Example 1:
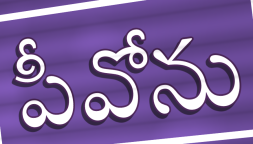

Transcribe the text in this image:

పీవోను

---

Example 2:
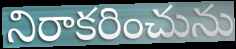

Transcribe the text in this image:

నిరాకరించును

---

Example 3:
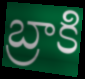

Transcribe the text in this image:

బ్రాకి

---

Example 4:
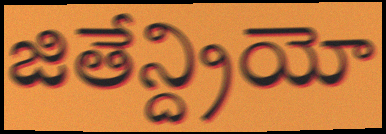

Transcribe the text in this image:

జితేన్ద్రియో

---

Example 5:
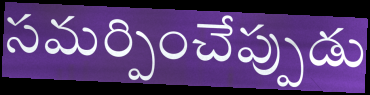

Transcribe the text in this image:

సమర్పించేప్పుడు